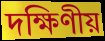
দক্ষিণীয়